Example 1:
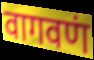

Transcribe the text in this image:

वागवणं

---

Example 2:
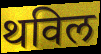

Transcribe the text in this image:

थविल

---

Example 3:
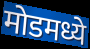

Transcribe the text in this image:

मोडमध्ये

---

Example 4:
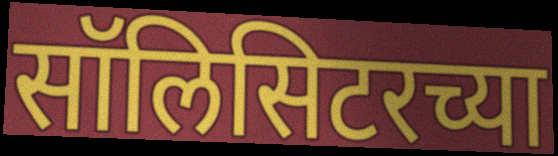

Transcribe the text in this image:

सॉलिसिटरच्या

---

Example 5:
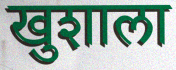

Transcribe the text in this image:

खुशाला